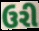
ઉરી